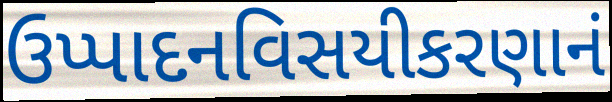
ઉપ્પાદનવિસયીકરણાનં